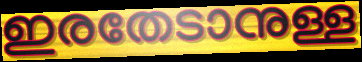
ഇരതേടാനുള്ള